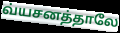
வ்யசனத்தாலே